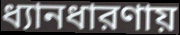
ধ্যানধারণায়